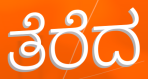
ತೆರೆದ